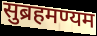
सुब्रहमण्यम